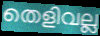
തെളിവല്ല